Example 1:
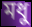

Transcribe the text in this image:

মধু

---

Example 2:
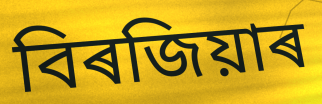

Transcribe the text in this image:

বিৰজিয়াৰ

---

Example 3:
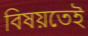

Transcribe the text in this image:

বিষয়তেই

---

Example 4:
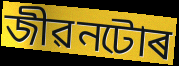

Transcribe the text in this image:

জীৱনটোৰ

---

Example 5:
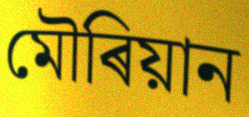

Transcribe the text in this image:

মৌৰিয়ান